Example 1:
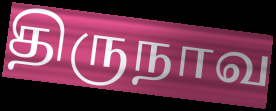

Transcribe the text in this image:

திருநாவ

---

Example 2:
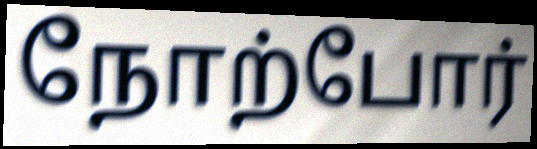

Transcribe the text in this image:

நோற்போர்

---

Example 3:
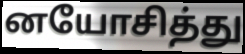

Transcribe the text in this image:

னயோசித்து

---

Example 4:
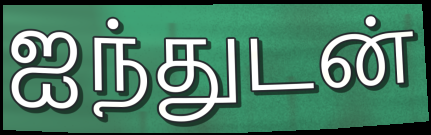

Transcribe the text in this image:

ஐந்துடன்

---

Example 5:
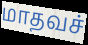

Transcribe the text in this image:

மாதவச்